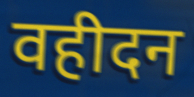
वहीदन